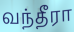
வந்தீரா